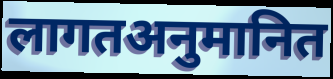
लागतअनुमानित